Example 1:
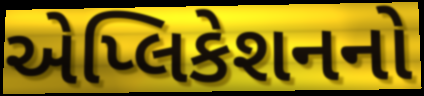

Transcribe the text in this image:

એપ્લિકેશનનો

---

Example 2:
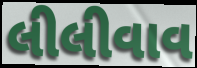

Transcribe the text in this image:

લીલીવાવ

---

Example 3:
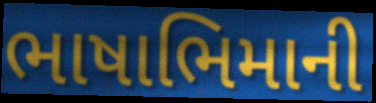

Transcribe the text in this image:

ભાષાભિમાની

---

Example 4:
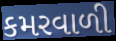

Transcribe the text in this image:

કમરવાળી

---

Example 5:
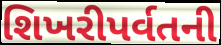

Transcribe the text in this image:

શિખરીપર્વતની